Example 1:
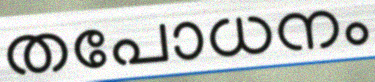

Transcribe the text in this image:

തപോധനം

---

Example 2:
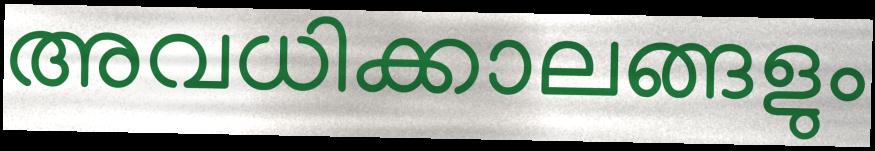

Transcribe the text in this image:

അവധിക്കാലങ്ങളും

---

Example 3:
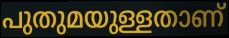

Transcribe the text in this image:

പുതുമയുള്ളതാണ്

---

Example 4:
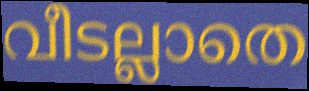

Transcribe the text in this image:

വീടല്ലാതെ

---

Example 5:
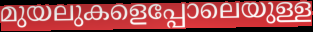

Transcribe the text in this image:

മുയലുകളെപ്പോലെയുള്ള